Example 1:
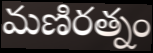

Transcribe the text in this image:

మణిరత్నం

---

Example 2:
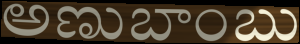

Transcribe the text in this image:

అణుబాంబు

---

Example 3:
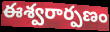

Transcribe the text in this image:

ఈశ్వరార్పణం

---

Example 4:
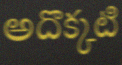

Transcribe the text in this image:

అదొక్కటి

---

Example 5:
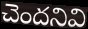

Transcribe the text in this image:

చెందనివి